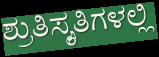
ಶ್ರುತಿಸ್ಕೃತಿಗಳಲ್ಲಿ